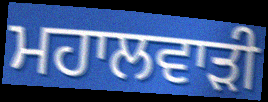
ਮਹਾਲਵਾੜੀ